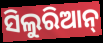
ସିଲୁରିଆନ୍